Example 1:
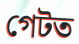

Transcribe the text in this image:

গেটত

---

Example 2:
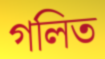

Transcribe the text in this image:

গলিত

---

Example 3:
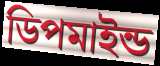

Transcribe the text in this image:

ডিপমাইন্ড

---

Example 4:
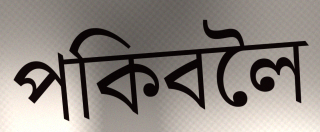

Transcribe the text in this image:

পকিবলৈ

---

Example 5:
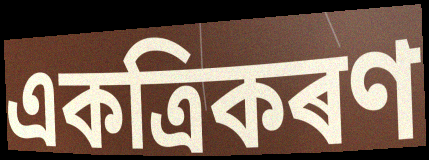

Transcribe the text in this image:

একত্ৰিকৰণ